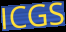
ICGS